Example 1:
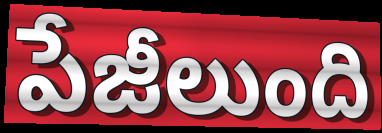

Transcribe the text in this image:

పేజీలుంది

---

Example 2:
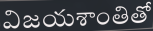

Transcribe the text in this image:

విజయశాంతితో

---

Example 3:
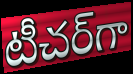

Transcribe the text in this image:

టీచర్‌గా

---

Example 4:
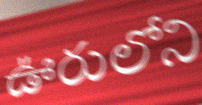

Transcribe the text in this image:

ఊరులోని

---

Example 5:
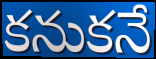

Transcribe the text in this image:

కనుకనే